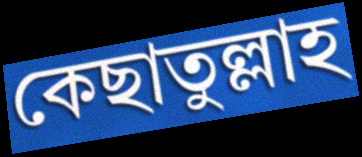
কেছাতুল্লাহ